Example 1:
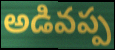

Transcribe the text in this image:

అడివప్ప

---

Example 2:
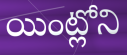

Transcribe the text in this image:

యింట్లోని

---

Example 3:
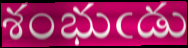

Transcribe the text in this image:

శంభుఁడు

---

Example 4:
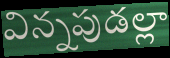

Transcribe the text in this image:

విన్నపుడల్లా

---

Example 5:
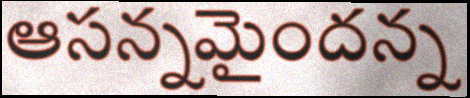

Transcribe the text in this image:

ఆసన్నమైందన్న